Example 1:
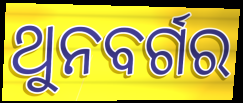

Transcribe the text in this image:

ଥୁନବର୍ଗର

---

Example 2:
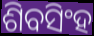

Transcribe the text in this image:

ଶିବସିଂହ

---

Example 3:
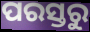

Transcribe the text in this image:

ପରସ୍ତରୁ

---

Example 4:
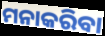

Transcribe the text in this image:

ମନାକରିବା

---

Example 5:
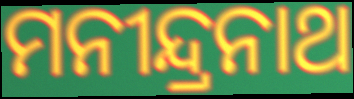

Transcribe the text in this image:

ମନୀନ୍ଦ୍ରନାଥ